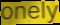
onely